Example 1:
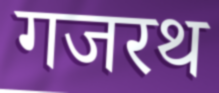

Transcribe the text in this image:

गजरथ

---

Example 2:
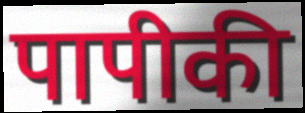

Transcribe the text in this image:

पापीकी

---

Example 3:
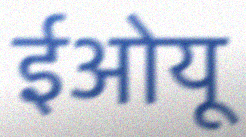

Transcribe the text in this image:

ईओयू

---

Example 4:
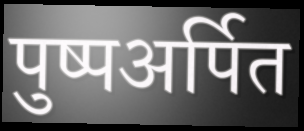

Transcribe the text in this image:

पुष्पअर्पित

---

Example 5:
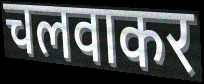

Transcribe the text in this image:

चलवाकर